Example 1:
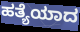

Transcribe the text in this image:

ಹತ್ಯೆಯಾದ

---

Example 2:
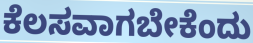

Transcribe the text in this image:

ಕೆಲಸವಾಗಬೇಕೆಂದು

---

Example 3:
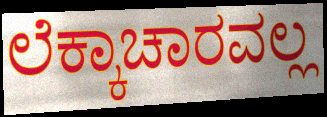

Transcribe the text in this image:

ಲೆಕ್ಕಾಚಾರವಲ್ಲ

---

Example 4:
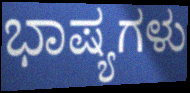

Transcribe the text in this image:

ಭಾಷ್ಯಗಳು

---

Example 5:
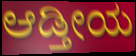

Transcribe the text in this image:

ಆಡ್ತೀಯ